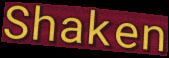
Shaken